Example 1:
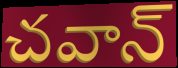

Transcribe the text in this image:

చవాన్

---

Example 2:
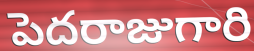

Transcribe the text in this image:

పెదరాజుగారి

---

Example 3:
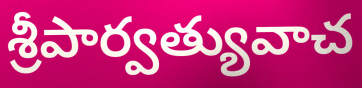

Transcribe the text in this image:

శ్రీపార్వత్యువాచ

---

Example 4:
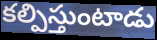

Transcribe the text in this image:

కల్పిస్తుంటాడు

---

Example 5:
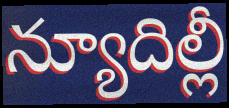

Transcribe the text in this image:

న్యూదిల్లీ